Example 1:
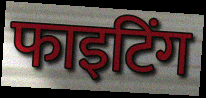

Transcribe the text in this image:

फाइटिंग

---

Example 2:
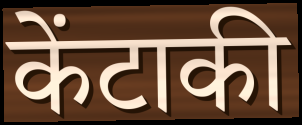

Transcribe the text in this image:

केंटाकी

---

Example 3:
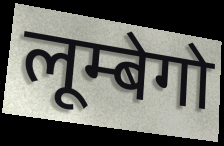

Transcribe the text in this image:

लूम्बेगो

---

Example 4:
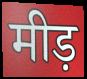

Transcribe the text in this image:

मीड़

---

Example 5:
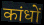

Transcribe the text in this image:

कांधों